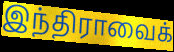
இந்திராவைக்